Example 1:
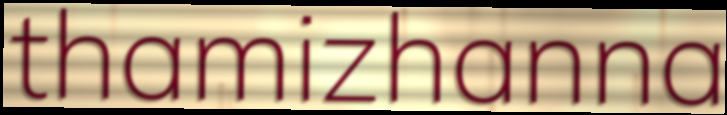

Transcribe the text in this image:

thamizhanna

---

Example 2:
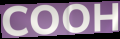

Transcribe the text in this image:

COOH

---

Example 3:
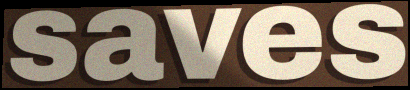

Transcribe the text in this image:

saves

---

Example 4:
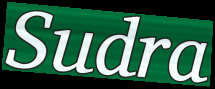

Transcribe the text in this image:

Sudra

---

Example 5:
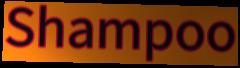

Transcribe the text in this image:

Shampoo